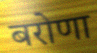
बरोणा